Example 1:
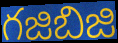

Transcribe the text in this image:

గజిబిజి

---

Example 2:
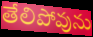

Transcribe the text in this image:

తేలిపోవును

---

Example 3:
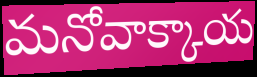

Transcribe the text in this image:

మనోవాక్కాయ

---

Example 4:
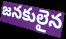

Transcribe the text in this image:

జనకులైన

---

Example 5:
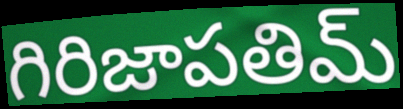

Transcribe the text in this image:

గిరిజాపతిమ్